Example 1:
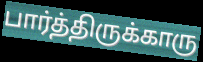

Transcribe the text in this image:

பார்த்திருக்காரு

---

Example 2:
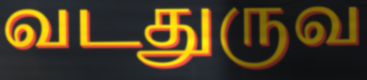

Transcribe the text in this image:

வடதுருவ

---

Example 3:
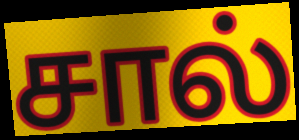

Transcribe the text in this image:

சால்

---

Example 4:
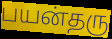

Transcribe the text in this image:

பயன்தரு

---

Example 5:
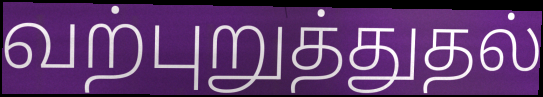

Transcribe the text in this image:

வற்புறுத்துதல்